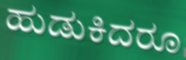
ಹುಡುಕಿದರೂ